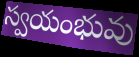
స్వయంభువు